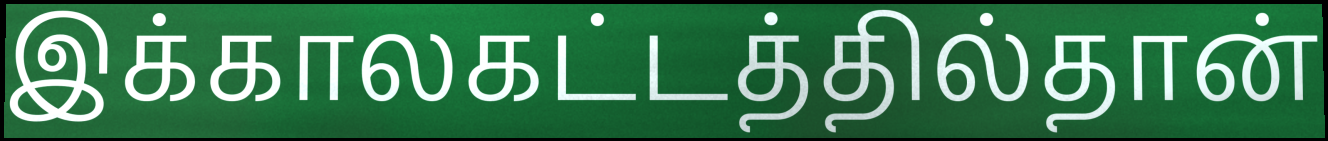
இக்காலகட்டத்தில்தான்